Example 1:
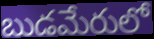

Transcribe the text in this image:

బుడమేరులో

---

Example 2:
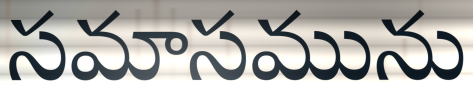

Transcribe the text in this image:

సమాసమును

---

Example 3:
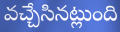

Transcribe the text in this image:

వచ్చేసినట్లుంది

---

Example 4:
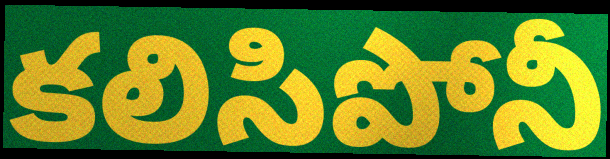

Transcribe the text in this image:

కలిసిపోనీ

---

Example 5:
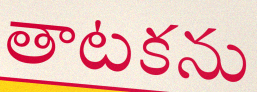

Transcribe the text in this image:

తాటకను